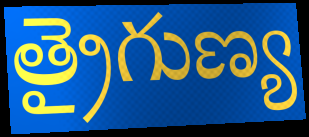
త్రైగుణ్య